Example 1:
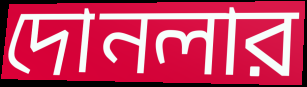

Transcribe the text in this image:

দোনলার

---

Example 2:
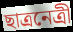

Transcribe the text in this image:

ছাত্রনেত্রী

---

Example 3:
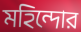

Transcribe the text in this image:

মহিন্দোর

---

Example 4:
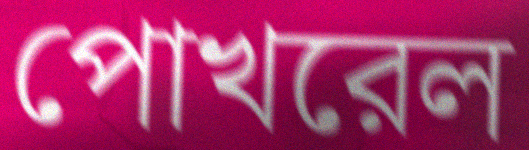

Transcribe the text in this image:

পোখরেল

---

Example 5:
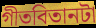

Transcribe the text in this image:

গীতবিতানটা